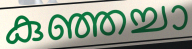
കുഞ്ഞച്ചാ